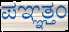
ಪಞ್ಞತ್ತಂ